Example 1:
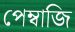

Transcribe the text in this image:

পেম্বাজি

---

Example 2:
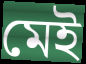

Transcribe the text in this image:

মেই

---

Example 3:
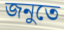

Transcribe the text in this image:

জনুতে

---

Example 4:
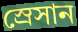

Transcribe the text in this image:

স্রেসান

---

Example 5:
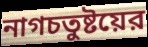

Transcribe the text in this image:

নাগচতুষ্টয়ের